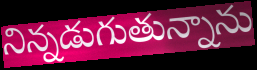
నిన్నడుగుతున్నాను